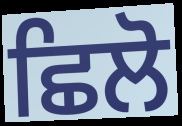
ਛਿਲੋ